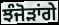
ਝੰਜੋੜਾਂਗੇ